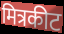
मित्रकीट